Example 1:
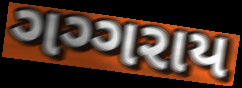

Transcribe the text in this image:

ગગ્ગરાય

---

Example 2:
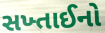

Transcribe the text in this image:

સખ્તાઈનો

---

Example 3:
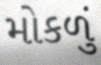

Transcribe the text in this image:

મોકળું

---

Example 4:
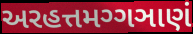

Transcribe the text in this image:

અરહત્તમગ્ગઞાણં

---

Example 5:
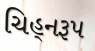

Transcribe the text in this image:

ચિહ્‌નરૂપ